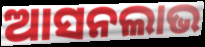
ଆସନଲାଭ